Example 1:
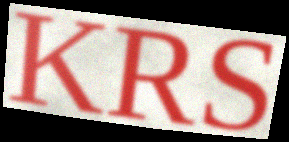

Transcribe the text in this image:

KRS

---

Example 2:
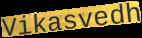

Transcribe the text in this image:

Vikasvedh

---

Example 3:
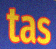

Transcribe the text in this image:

tas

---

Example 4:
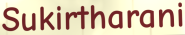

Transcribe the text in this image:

Sukirtharani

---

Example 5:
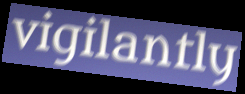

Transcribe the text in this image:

vigilantly